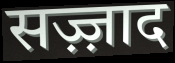
सज़्ज़ाद